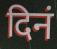
दिनं